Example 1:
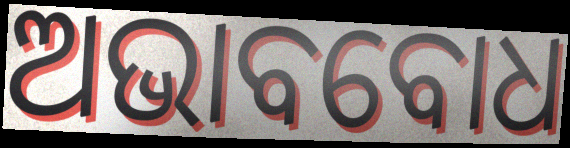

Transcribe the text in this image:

ଅଭାବବୋଧ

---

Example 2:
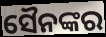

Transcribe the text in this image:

ସୈନଙ୍କର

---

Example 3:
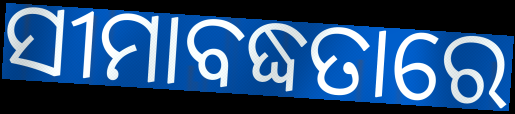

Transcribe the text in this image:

ସୀମାବଦ୍ଧତାରେ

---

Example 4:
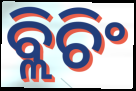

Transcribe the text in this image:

ବ୍ଲିଚିଂ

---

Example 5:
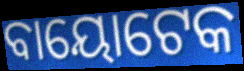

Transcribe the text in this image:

ବାୟୋଟେକ